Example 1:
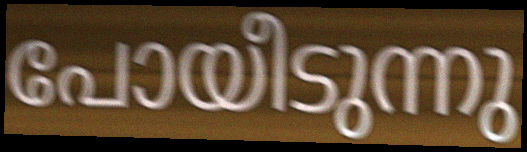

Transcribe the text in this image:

പോയീടുന്നു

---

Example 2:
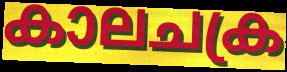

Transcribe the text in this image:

കാലചക്ര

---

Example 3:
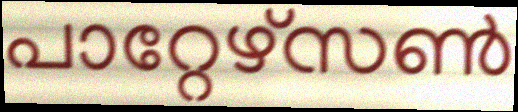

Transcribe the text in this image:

പാറ്റേഴ്സൺ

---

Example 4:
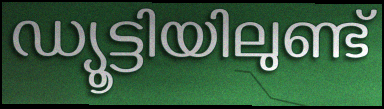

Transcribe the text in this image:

ഡ്യൂട്ടിയിലുണ്ട്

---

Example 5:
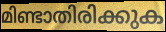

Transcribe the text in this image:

മിണ്ടാതിരിക്കുക